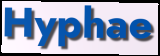
Hyphae